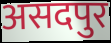
असदपुर